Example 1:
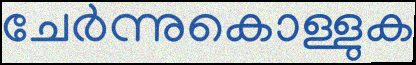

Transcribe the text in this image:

ചേർന്നുകൊള്ളുക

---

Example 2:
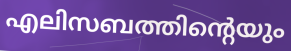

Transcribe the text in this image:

എലിസബത്തിന്റെയും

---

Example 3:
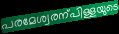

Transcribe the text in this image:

പരമേശ്വരന്പിള്ളയുടെ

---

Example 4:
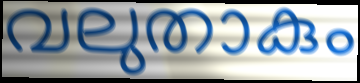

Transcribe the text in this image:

വലുതാകും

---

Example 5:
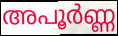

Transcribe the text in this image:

അപൂർണ്ണ